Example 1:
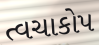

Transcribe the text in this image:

ત્વચાકોપ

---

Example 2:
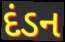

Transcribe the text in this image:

દંડન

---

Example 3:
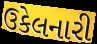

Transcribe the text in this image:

ઉકેલનારી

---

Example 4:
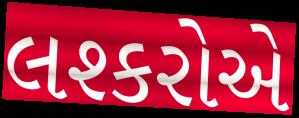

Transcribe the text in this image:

લશ્કરોએ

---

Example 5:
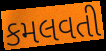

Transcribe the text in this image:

કમલવતી